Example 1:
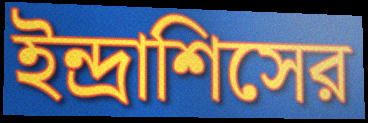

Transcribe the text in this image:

ইন্দ্রাশিসের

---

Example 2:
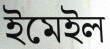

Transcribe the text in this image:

ইমেইল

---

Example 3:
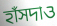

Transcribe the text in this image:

হাঁসদাও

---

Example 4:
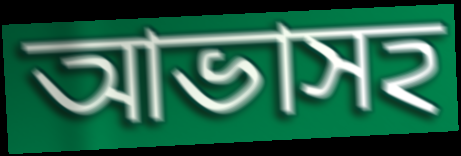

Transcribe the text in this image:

আভাসহ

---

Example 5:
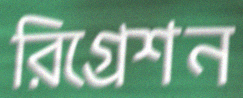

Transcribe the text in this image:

রিগ্রেশন